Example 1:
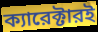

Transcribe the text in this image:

ক্যারেক্টারই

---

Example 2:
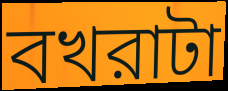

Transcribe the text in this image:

বখরাটা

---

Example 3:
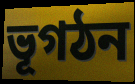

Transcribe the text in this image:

ভূগঠন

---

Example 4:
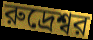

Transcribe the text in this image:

রুদ্রেশ্বর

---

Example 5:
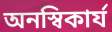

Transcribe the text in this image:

অনস্বিকার্য